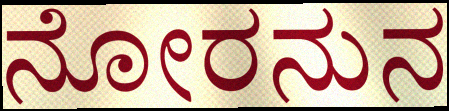
ನೋರನುನ